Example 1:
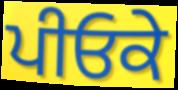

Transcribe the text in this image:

ਪੀਓਕੇ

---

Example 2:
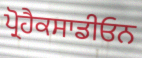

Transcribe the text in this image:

ਪ੍ਰੋਹੈਕਸਾਡੀਓਨ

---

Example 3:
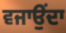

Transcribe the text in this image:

ਵਜਾਉਂਦਾ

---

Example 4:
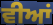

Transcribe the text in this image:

ਵੀਆਂ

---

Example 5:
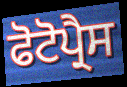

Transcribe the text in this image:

ਫੋਟੋਪ੍ਰੈਸ